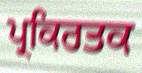
ਪ੍ਰਕਿਰਤਕ